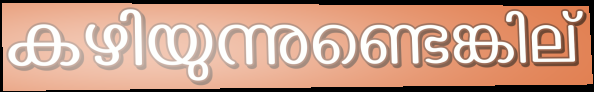
കഴിയുന്നുണ്ടെങ്കില്